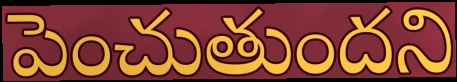
పెంచుతుందని